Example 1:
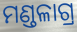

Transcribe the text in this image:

ମଣ୍ଡଳାଗ୍ର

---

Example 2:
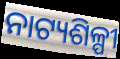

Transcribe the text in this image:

ନାଟ୍ୟଶିଳ୍ପୀ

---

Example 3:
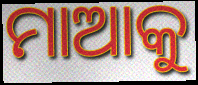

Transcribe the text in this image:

ମାଆକୁ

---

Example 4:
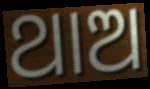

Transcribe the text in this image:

ଥାଅ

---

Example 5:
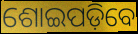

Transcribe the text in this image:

ଶୋଇପଡ଼ିବେ